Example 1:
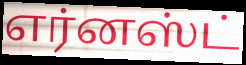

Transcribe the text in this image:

எர்னஸ்ட்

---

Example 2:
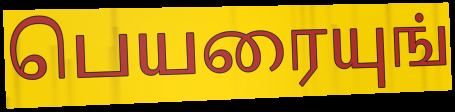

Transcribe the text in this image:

பெயரையுங்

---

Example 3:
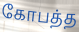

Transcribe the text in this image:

கோபத்த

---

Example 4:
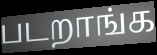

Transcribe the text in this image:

படறாங்க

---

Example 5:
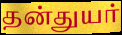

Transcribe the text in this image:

தன்துயர்